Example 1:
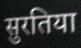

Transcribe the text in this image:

सुरतिया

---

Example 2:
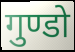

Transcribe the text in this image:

गुण्डो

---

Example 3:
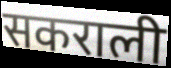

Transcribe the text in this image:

सकराली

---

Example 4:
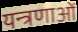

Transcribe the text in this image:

यन्त्रणाओं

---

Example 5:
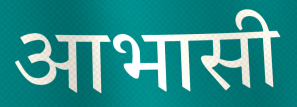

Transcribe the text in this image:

आभासी